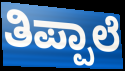
ತಿಪ್ಪಾಲೆ